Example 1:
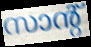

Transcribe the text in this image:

സാന്റ്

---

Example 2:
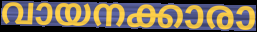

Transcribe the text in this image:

വായനക്കാരാ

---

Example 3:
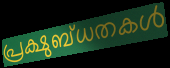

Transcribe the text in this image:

പ്രക്ഷുബ്ധതകൾ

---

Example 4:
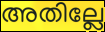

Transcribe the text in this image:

അതില്ലേ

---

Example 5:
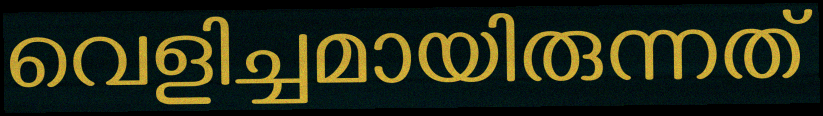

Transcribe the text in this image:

വെളിച്ചമായിരുന്നത്